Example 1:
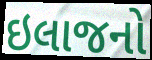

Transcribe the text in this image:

ઇલાજનો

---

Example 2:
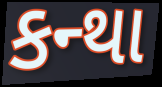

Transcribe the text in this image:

કન્થા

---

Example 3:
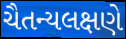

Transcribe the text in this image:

ચૈતન્યલક્ષણે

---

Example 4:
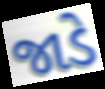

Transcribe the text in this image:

જાડે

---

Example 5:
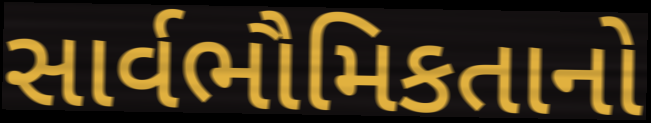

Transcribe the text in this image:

સાર્વભૌમિકતાનો